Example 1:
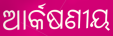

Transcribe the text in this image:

ଆର୍କଷଣୀୟ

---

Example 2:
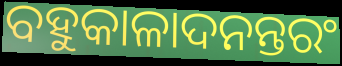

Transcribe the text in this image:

ବହୁକାଳାଦନନ୍ତରଂ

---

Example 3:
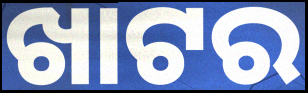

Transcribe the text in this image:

ଖାଟର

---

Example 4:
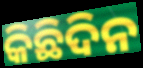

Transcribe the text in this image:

କିଛିଦିନ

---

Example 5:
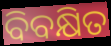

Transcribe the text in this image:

ବିବକ୍ଷିତ